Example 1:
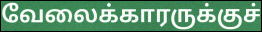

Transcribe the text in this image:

வேலைக்காரருக்குச்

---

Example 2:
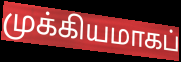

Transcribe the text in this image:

முக்கியமாகப்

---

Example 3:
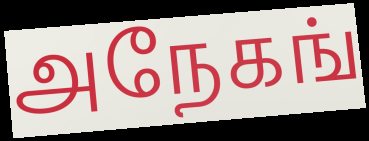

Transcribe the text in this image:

அநேகங்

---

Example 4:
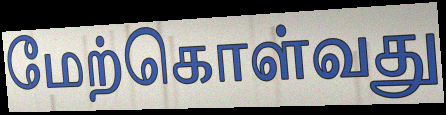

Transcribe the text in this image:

மேற்கொள்வது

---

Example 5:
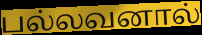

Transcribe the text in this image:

பல்லவனால்